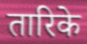
तारिके